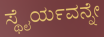
ಸ್ಥೈರ್ಯವನ್ನೇ